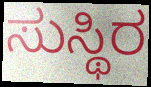
ಸುಸ್ಥಿರ